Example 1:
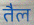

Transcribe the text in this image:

तैल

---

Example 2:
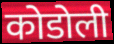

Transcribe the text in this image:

कोडोली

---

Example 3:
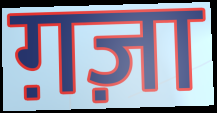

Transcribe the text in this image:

ग़ज़ा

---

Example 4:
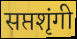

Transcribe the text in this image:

सप्तशृंगी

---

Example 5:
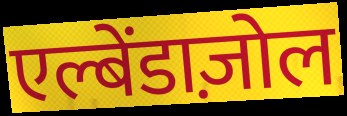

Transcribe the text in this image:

एल्बेंडाज़ोल